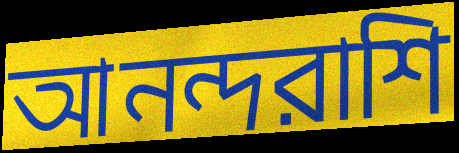
আনন্দরাশি